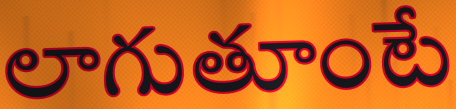
లాగుతూంటే